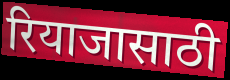
रियाजासाठी